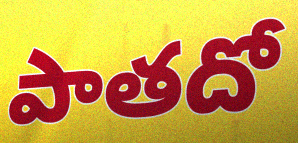
పాతదో